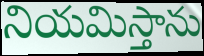
నియమిస్తాను